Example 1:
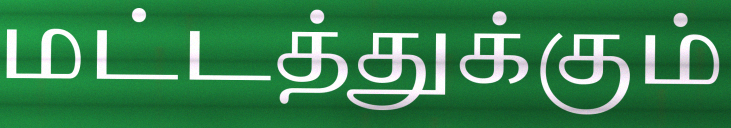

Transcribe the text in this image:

மட்டத்துக்கும்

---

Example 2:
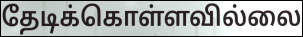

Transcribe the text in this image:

தேடிக்கொள்ளவில்லை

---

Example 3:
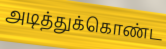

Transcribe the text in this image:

அடித்துக்கொண்ட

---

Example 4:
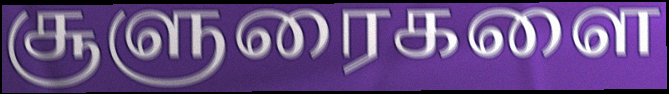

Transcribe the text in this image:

சூளுரைகளை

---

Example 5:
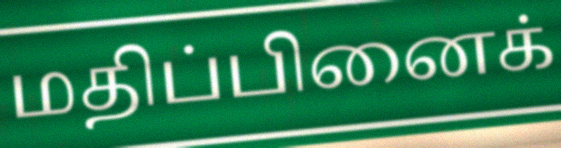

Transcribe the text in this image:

மதிப்பினைக்